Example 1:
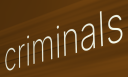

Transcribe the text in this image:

criminals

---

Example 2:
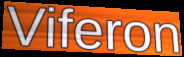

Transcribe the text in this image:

Viferon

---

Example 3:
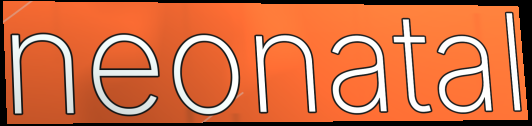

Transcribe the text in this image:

neonatal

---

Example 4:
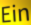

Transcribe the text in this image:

Ein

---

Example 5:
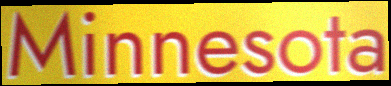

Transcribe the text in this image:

Minnesota